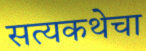
सत्यकथेचा